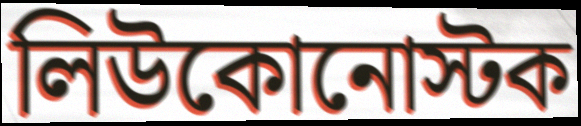
লিউকোনোস্টক